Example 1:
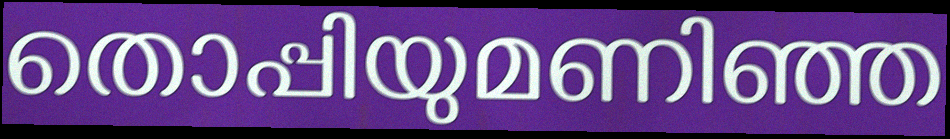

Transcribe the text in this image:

തൊപ്പിയുമണിഞ്ഞ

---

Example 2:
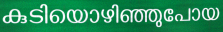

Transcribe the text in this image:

കുടിയൊഴിഞ്ഞുപോയ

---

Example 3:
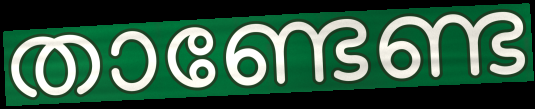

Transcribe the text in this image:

താണ്ടേണ്ട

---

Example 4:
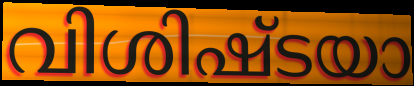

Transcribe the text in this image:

വിശിഷ്ടയാ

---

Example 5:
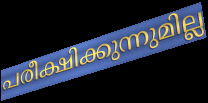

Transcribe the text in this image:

പരീക്ഷിക്കുന്നുമില്ല